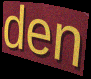
den